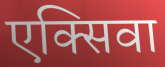
एक्सिवा